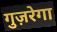
गुज़रेगा